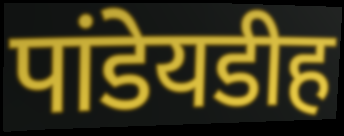
पांडेयडीह